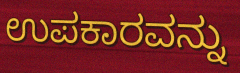
ಉಪಕಾರವನ್ನು